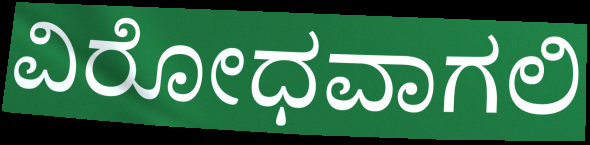
ವಿರೋಧವಾಗಲಿ